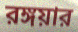
রঙ্গয়ার